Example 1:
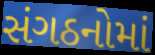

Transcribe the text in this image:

સંગઠનોમાં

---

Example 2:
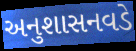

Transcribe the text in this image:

અનુશાસનવડે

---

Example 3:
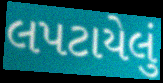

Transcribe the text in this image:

લપટાયેલું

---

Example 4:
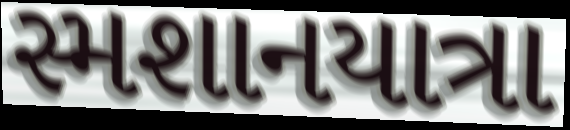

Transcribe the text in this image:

સ્મશાનયાત્રા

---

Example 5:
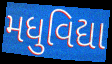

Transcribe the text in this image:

મધુવિદ્યા